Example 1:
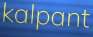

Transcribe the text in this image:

kalpant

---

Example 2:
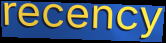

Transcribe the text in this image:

recency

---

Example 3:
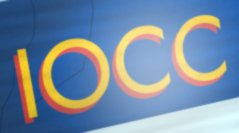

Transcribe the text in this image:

IOCC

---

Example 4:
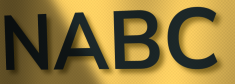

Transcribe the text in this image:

NABC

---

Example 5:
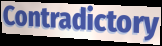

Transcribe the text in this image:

Contradictory